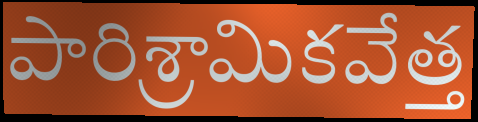
పారిశ్రామికవేత్త